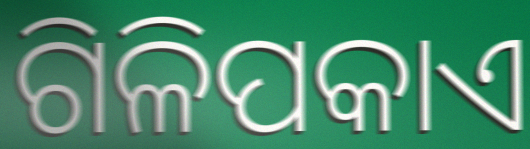
ଗିଳିପକାଏ